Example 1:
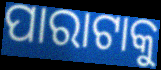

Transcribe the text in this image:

ପାରାଟାକୁ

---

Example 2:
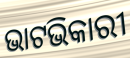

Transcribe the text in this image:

ଭାଟଭିକାରୀ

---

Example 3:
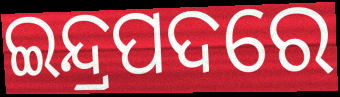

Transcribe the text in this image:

ଇନ୍ଦ୍ରପଦରେ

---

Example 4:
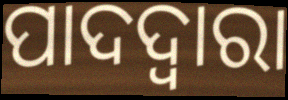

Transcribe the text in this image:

ପାଦଦ୍ଵାରା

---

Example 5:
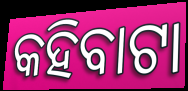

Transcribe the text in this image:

କହିବାଟା